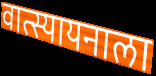
वात्स्यायनाला